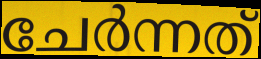
ചേർന്നത്